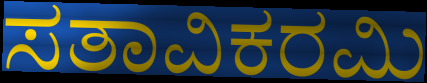
ಸತಾವಿಕರಮಿ